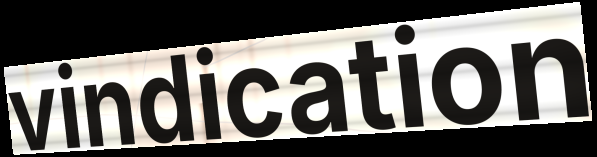
vindication